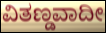
ವಿತಣ್ಡವಾದೀ